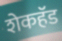
शेकहॅड